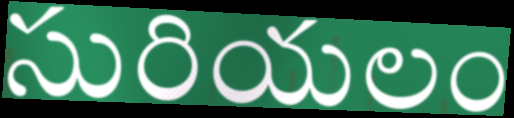
సురియలం